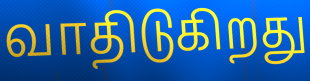
வாதிடுகிறது